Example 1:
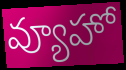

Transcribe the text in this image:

వ్యూహో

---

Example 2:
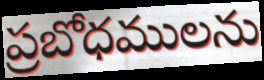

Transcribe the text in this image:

ప్రబోధములను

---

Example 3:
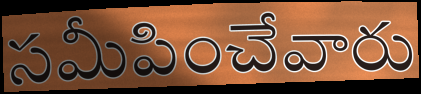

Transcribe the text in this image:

సమీపించేవారు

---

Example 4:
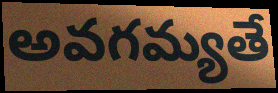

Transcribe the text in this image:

అవగమ్యతే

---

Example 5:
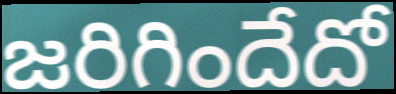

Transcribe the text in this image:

జరిగిందేదో